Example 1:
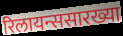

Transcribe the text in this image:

रिलायन्ससारख्या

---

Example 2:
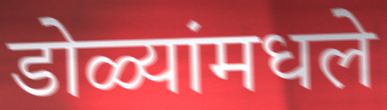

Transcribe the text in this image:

डोळ्यांमधले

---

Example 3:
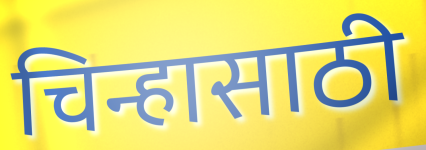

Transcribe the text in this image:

चिन्हासाठी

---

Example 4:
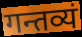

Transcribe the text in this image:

गन्तव्यं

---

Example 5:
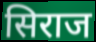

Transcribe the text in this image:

सिराज